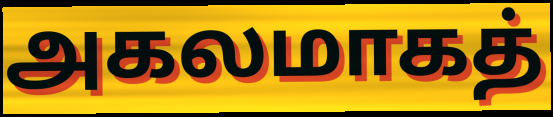
அகலமாகத்